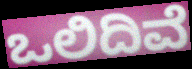
ಒಲಿದಿವೆ